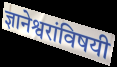
ज्ञानेश्वरांविषयी